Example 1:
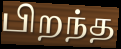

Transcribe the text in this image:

பிறந்த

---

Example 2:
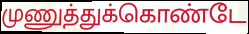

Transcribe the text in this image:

முணுத்துக்கொண்டே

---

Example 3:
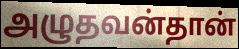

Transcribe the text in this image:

அழுதவன்தான்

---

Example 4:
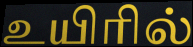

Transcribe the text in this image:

உயிரில்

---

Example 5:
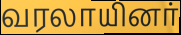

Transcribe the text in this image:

வரலாயினர்